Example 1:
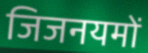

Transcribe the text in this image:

जिजनयमों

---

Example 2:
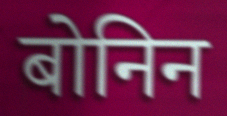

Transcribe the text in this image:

बोनिन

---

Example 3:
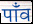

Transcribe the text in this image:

पांँव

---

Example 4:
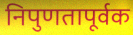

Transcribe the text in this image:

निपुणतापूर्वक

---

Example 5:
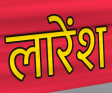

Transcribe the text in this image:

लारेंश